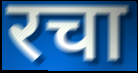
रचा